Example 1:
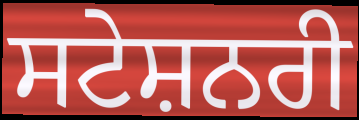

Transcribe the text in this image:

ਸਟੇਸ਼ਨਰੀ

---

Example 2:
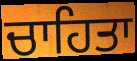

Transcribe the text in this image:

ਚਾਹਿਤਾ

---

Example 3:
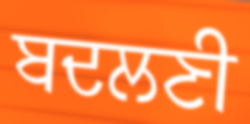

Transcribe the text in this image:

ਬਦਲਣੀ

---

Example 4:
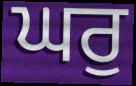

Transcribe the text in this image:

ਘਰੁ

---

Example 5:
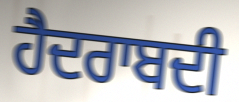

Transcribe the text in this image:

ਹੈਦਰਾਬਦੀ